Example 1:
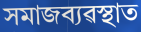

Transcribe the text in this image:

সমাজব্যৱস্থাত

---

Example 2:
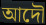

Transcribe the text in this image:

আদৌ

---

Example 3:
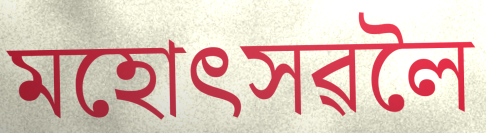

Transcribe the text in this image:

মহোৎসৱলৈ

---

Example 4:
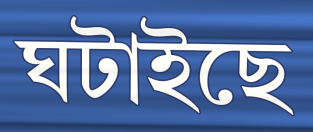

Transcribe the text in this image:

ঘটাইছে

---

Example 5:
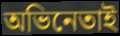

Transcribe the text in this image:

অভিনেতাই